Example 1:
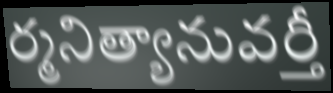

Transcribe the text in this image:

ర్మనిత్యానువర్తీ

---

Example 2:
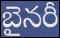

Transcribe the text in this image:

బైనరీ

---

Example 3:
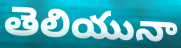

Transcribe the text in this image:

తెలియునా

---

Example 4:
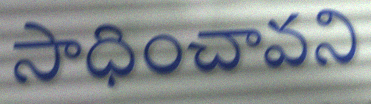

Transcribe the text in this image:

సాధించావని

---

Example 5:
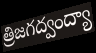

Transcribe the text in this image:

త్రిజగద్వంద్యా